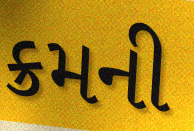
ક્રમની